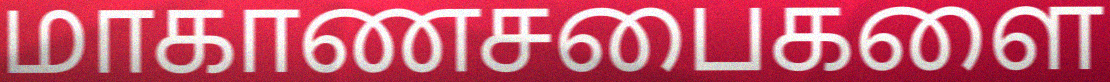
மாகாணசபைகளை